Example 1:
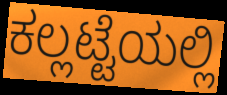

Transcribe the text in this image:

ಕಲ್ಲಟ್ಟೆಯಲ್ಲಿ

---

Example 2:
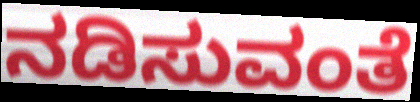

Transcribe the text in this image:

ನಡಿಸುವಂತೆ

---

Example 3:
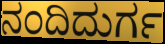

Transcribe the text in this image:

ನಂದಿದುರ್ಗ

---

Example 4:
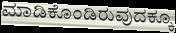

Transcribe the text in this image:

ಮಾಡಿಕೊಂಡಿರುವುದಕ್ಕೂ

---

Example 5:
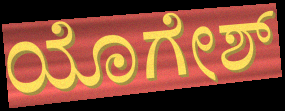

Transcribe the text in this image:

ಯೊಗೇಶ್